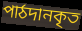
পাঠদানকৃত